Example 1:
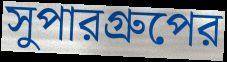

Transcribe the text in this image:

সুপারগ্রুপের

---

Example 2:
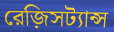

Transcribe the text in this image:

রেজ়িসট্যান্স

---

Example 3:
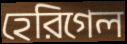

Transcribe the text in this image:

হেরিগেল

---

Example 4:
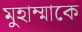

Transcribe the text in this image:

মুহাম্মাকে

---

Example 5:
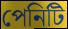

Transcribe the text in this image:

পেনিটি